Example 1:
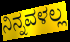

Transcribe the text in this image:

ನಿನ್ನವಳಲ್ಲ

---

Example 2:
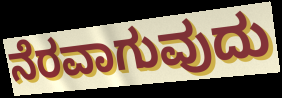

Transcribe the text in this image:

ನೆರವಾಗುವುದು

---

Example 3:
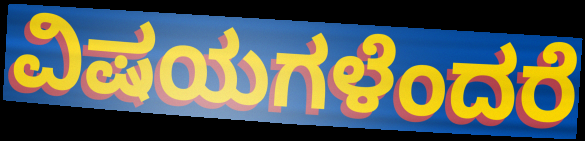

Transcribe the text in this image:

ವಿಷಯಗಳೆಂದರೆ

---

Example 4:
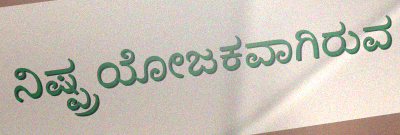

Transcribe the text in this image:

ನಿಷ್ಪ್ರಯೋಜಕವಾಗಿರುವ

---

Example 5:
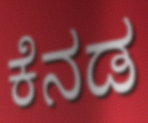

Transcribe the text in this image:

ಕೆನಡ